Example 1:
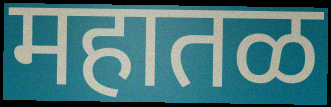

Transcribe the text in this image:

महातळ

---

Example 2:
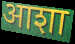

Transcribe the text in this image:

आशा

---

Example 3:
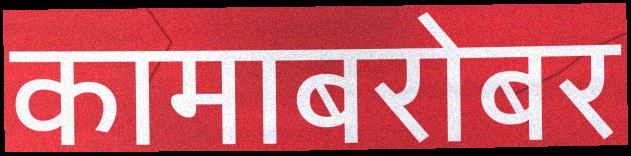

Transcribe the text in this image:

कामाबरोबर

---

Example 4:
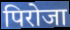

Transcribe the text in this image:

पिरोजा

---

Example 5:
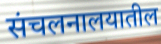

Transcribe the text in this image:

संचलनालयातील